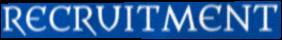
RECRUITMENT